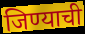
जिण्याची